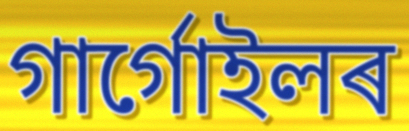
গাৰ্গোইলৰ